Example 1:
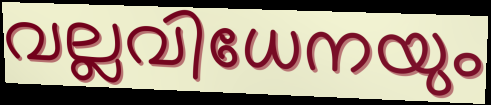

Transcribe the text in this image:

വല്ലവിധേനയും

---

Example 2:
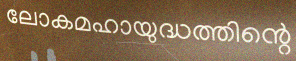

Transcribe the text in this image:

ലോകമഹായുദ്ധത്തിന്റെ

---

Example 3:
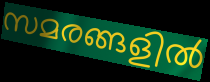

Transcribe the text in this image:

സമരങ്ങളിൽ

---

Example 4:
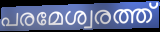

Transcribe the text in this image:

പരമേശ്വരത്ത്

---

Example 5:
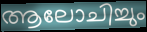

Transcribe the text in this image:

ആലോചിച്ചും